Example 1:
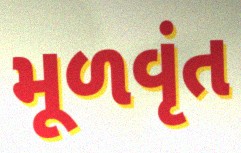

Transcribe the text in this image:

મૂળવૃંત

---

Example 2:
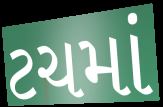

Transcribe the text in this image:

ટચમાં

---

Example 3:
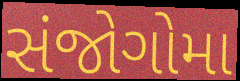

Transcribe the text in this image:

સંજોગોમા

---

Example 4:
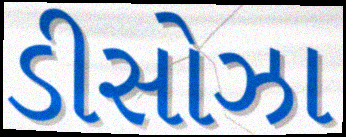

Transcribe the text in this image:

ડીસોઝા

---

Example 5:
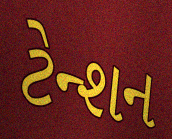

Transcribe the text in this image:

ટેન્શન